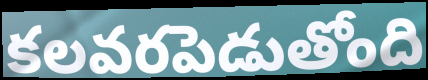
కలవరపెడుతోంది